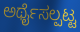
ಅರ್ಥೈಸಲ್ಪಟ್ಟ